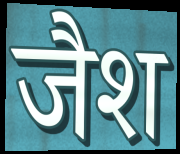
जैश